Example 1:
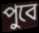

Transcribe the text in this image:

পুবে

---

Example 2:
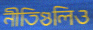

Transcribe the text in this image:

নীতিগুলিও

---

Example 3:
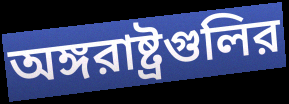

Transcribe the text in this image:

অঙ্গরাষ্ট্রগুলির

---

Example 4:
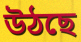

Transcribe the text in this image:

উঠছে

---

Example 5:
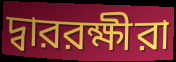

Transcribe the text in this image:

দ্বাররক্ষীরা